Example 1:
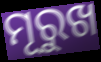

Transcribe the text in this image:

ମୂରୁଖ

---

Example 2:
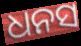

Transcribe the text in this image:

ଧନସ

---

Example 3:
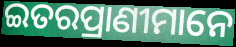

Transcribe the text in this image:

ଇତରପ୍ରାଣୀମାନେ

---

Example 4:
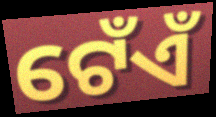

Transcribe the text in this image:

ଟେଁଏଁ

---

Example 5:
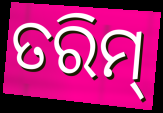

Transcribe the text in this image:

ତରିମ୍